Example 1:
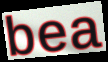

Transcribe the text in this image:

bea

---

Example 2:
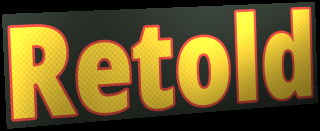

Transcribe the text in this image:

Retold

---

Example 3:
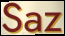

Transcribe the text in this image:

Saz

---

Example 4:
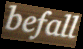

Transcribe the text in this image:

befall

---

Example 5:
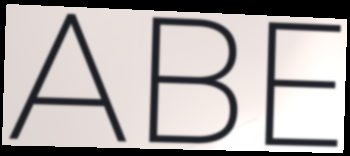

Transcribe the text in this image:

ABE